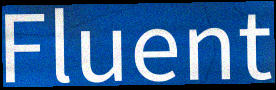
Fluent